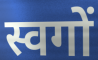
स्वगों